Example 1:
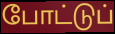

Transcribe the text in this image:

போட்டுப்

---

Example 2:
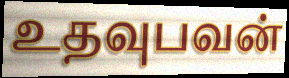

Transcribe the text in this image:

உதவுபவன்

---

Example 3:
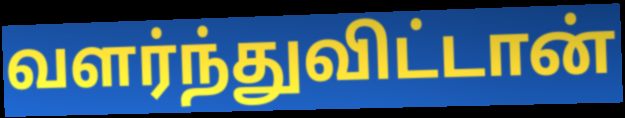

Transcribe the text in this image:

வளர்ந்துவிட்டான்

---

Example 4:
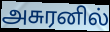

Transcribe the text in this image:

அசுரனில்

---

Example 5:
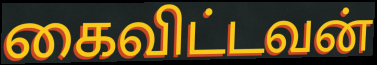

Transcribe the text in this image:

கைவிட்டவன்